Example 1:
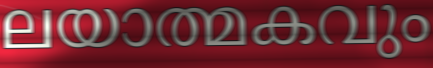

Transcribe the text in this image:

ലയാത്മകവും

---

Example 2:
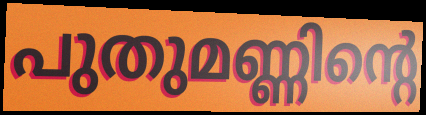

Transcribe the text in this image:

പുതുമണ്ണിന്റെ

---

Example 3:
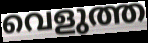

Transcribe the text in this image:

വെളുത്ത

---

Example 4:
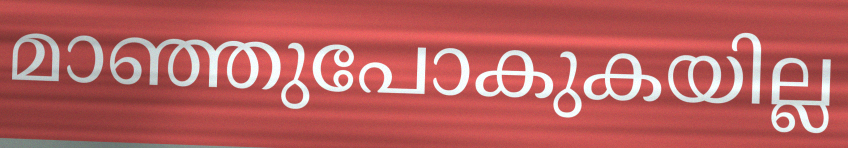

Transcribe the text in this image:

മാഞ്ഞുപോകുകയില്ല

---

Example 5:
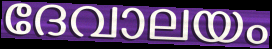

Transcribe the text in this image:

ദേവാലയം